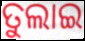
ତୁଲାଇ